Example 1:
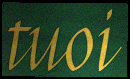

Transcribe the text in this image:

tuoi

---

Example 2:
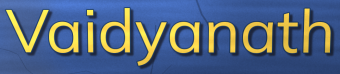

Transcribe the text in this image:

Vaidyanath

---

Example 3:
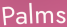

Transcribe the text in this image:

Palms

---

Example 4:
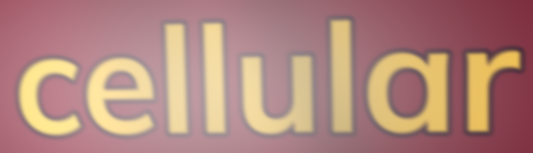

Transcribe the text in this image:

cellular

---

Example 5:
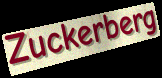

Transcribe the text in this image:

Zuckerberg